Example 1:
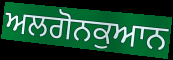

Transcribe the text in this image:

ਅਲਗੋਨਕੁਆਨ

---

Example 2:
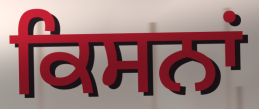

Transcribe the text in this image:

ਕਿਸਨਾਂ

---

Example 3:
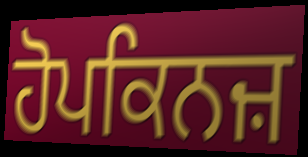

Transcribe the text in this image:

ਹੋਪਕਿਨਜ਼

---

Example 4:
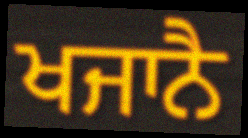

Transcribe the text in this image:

ਖਜਾਨੈ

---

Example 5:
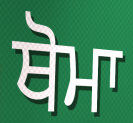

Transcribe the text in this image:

ਥੋਮਾ